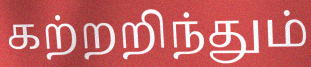
கற்றறிந்தும்